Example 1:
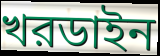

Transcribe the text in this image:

খরডাইন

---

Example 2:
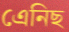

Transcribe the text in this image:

এেনিছ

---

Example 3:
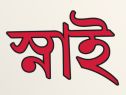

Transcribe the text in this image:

স্নাই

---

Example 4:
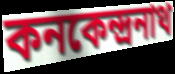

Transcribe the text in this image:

কনকেন্দ্রনাথ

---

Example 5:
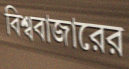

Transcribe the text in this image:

বিশ্ববাজারের